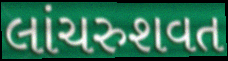
લાંચરુશવત